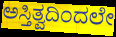
ಅಸ್ತಿತ್ವದಿಂದಲೇ